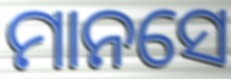
ମାନସେ